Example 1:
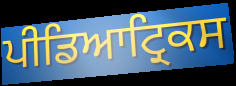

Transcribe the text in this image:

ਪੀਡਿਆਟ੍ਰਿਕਸ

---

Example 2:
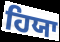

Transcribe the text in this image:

ਹਿਯਾ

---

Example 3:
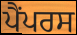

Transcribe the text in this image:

ਪੈਂਪਰਸ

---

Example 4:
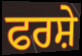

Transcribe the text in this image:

ਫਰਸ਼ੇ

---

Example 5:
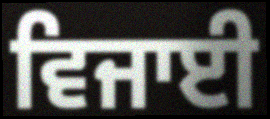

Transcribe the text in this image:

ਵਿਜਾਈ